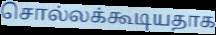
சொல்லக்கூடியதாக